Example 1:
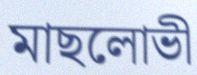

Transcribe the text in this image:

মাছলোভী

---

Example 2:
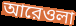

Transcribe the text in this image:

আরেওলা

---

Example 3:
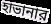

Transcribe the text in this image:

হাভানার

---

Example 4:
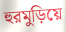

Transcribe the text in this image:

হুরমুড়িয়ে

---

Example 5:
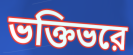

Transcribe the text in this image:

ভক্তিভরে